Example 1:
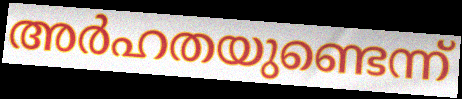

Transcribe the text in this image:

അർഹതയുണ്ടെന്ന്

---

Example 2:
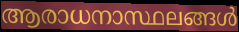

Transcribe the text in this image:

ആരാധനാസ്ഥലങ്ങൾ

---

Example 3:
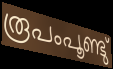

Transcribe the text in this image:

രൂപംപൂണ്ടു്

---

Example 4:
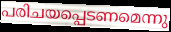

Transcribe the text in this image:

പരിചയപ്പെടണമെന്നു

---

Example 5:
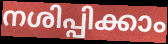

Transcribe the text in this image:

നശിപ്പിക്കാം